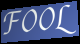
FOOL